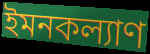
ইমনকল্যাণ